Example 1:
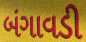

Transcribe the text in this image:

બંગાવડી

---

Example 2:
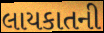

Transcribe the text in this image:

લાયકાતની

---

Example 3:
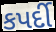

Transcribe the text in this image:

કપર્દી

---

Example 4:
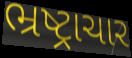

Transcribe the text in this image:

ભ્રષ્ટ્રાચાર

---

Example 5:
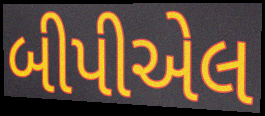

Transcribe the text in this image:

બીપીએલ